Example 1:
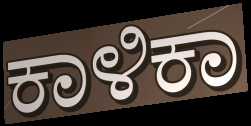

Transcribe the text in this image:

ಕಾಳಿಕಾ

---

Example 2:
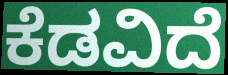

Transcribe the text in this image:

ಕೆಡವಿದೆ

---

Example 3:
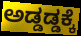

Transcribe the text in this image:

ಅಡ್ಡಡ್ಡಕ್ಕೆ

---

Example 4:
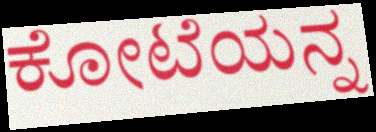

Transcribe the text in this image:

ಕೋಟೆಯನ್ನ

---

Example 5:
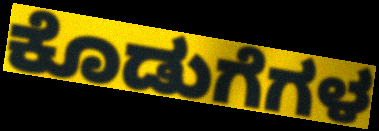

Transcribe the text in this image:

ಕೊಡುಗೆಗಳ